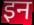
इन